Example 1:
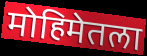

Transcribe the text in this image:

मोहिमेतला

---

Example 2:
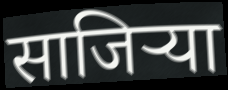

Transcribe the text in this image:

साजिर्‍या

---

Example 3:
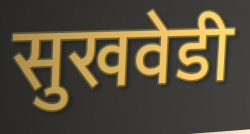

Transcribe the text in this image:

सुखवेडी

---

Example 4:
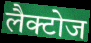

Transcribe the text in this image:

लैक्टोज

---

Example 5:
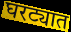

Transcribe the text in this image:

घरट्यात